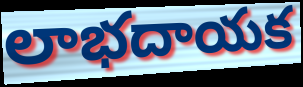
లాభదాయక